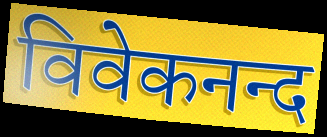
विवेकनन्द